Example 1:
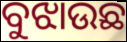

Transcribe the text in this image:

ବୁଝାଉଛ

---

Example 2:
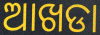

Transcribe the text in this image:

ଆଖଡା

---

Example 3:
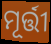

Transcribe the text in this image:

ମୂର୍ତ୍ତୀ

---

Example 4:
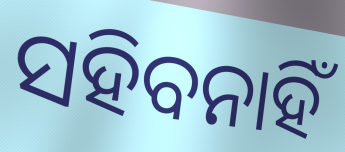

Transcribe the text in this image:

ସହିବନାହିଁ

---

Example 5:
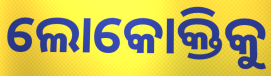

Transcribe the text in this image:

ଲୋକୋକ୍ତିକୁ